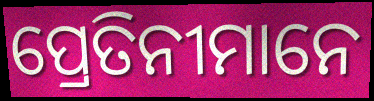
ପ୍ରେତିନୀମାନେ